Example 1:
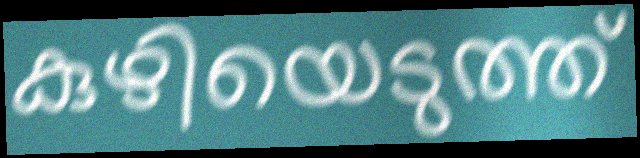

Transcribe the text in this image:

കുഴിയെടുത്ത്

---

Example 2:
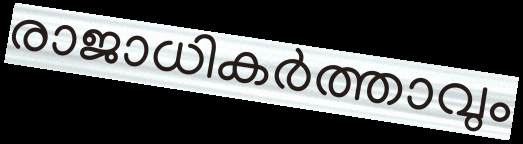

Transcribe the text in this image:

രാജാധികർത്താവും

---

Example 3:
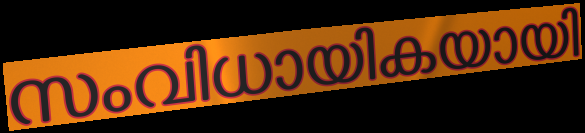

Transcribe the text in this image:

സംവിധായികയായി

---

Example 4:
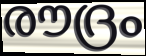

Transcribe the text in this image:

രൗദ്രം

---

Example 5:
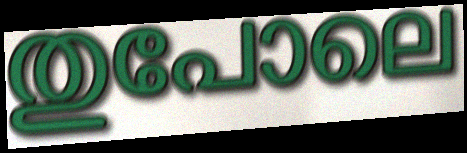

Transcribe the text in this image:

തുപോലെ